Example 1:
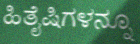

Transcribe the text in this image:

ಹಿತೈಷಿಗಳನ್ನೂ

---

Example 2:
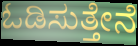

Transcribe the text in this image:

ಓಡಿಸುತ್ತೇನೆ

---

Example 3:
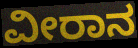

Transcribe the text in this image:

ವೀರಾನ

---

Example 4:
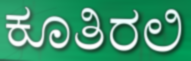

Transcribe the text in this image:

ಕೂತಿರಲಿ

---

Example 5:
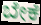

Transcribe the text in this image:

ಬೇಕೆ